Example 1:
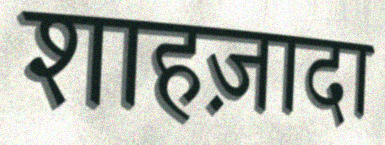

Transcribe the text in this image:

शाहज़ादा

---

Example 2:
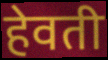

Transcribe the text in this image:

हेवती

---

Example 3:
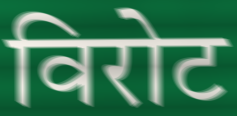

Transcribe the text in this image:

विरोट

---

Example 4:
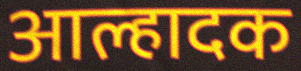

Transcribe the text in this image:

आल्हादक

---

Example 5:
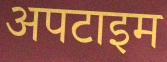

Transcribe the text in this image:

अपटाइम